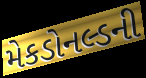
મેકડોનલ્ડની